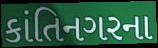
કાંતિનગરના